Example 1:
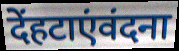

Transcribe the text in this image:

देंहटाएंवंदना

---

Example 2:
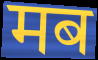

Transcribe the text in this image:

मब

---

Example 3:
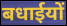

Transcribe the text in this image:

बधाईयों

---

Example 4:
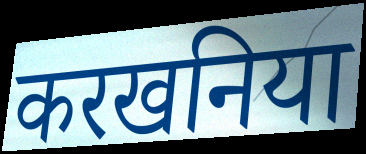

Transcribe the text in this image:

करखनिया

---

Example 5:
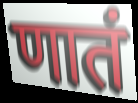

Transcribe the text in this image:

णातं